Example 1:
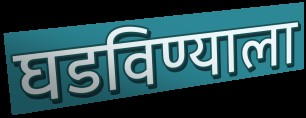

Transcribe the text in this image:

घडविण्याला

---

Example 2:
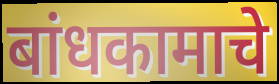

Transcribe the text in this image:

बांधकामाचे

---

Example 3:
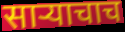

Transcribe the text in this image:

साऱ्याचाच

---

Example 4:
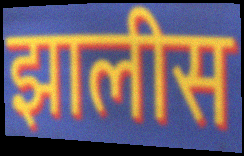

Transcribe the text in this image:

झालीस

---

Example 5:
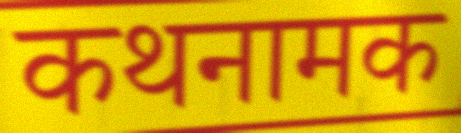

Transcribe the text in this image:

कथनामक